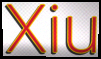
Xiu